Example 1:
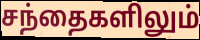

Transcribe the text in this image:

சந்தைகளிலும்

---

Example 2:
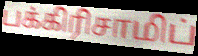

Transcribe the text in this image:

பக்கிரிசாமிப்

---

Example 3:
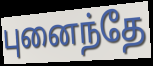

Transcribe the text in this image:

புனைந்தே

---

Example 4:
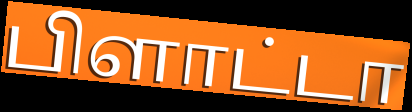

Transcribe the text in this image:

பிளாட்டா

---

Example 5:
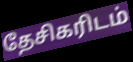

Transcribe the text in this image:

தேசிகரிடம்